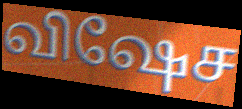
விஷேச